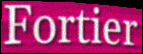
Fortier